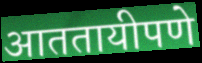
आततायीपणे